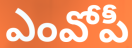
ఎంవోపీ